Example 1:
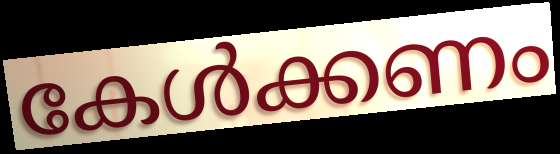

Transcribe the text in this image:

കേൾക്കണം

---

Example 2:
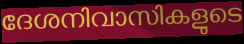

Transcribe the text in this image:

ദേശനിവാസികളുടെ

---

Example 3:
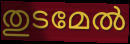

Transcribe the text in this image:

തുടമേൽ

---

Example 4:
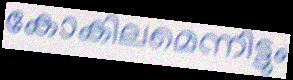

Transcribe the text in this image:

കോകിലമെന്നിട്ടും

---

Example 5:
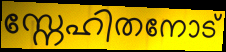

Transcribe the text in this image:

സ്നേഹിതനോട്